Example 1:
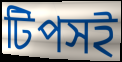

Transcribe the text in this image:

টিপসই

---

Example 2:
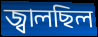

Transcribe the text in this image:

জ্বালছিল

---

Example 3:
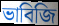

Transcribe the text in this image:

ভাবিজি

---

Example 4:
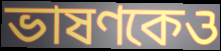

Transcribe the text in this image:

ভাষণকেও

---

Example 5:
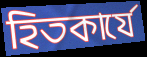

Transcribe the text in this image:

হিতকার্যে